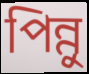
পিন্নু